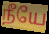
நீயே